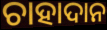
ଚାହାଦାନ